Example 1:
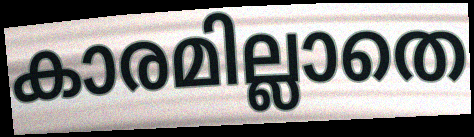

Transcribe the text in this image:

കാരമില്ലാതെ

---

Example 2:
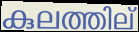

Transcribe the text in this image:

കുലത്തില്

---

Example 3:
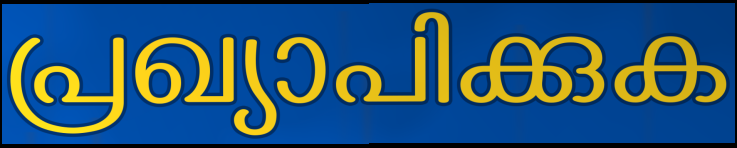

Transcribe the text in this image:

പ്രഖ്യാപിക്കുക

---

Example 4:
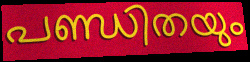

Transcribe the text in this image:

പണ്ഡിതയും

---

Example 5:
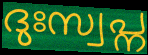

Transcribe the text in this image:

ദുഃസ്വപ്ന